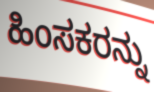
ಹಿಂಸಕರನ್ನು